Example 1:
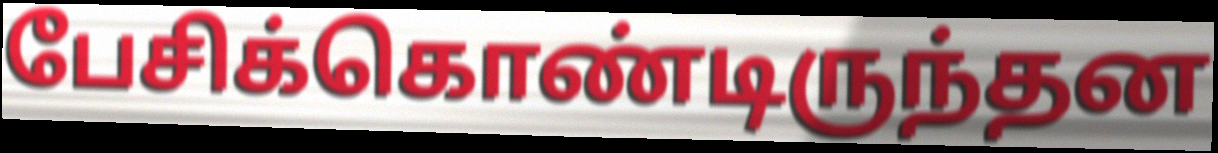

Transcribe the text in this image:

பேசிக்கொண்டிருந்தன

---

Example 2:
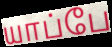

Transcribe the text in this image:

யாப்பே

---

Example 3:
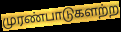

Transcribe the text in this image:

முரண்பாடுகளற்ற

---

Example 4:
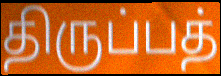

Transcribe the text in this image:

திருப்பத்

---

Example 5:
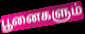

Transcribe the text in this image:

பூனைகளும்